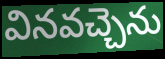
వినవచ్చెను